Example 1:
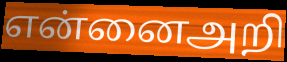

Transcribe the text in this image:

என்னைஅறி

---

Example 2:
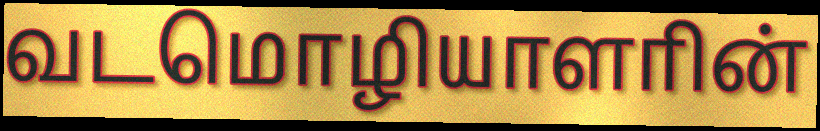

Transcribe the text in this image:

வடமொழியாளரின்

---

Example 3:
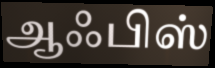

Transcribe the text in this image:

ஆஃபிஸ்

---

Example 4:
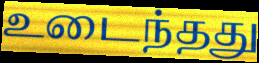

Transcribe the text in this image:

உடைந்தது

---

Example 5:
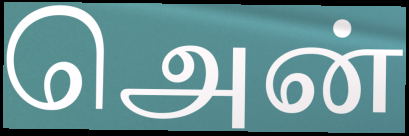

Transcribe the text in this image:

அென்